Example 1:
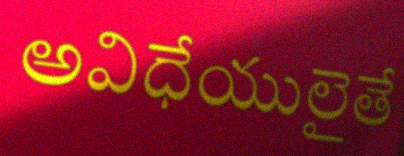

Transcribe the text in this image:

అవిధేయులైతే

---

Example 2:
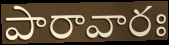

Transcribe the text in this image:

పారావారః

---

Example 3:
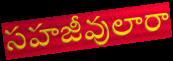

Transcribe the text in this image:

సహజీవులారా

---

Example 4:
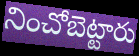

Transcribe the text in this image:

నించోబెట్టారు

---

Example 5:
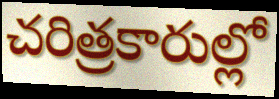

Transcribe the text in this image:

చరిత్రకారుల్లో